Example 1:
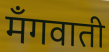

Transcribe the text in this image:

मँगवाती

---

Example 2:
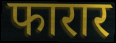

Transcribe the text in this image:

फारार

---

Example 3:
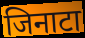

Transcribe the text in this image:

जिनाटा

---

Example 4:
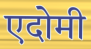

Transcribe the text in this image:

एदोमी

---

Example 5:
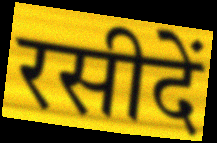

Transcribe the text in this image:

रसीदें